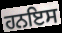
ਹਨਇਸ